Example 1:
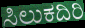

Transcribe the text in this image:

ಸಿಲುಕದಿರಿ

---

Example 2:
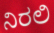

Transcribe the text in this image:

ನಿರಲಿ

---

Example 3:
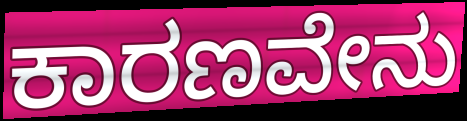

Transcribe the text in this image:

ಕಾರಣವೇನು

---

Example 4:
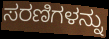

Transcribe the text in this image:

ಸರಣಿಗಳನ್ನು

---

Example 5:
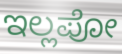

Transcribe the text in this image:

ಇಲ್ಲಪೋ